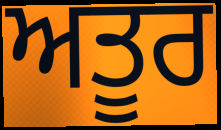
ਅਤੂਰ